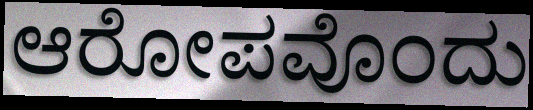
ಆರೋಪವೊಂದು